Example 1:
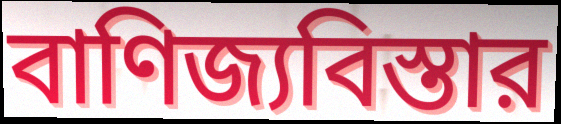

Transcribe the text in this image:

বাণিজ্যবিস্তার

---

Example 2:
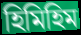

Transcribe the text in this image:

হিমিহিম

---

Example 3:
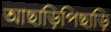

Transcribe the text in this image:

আছাড়িপিছাড়ি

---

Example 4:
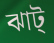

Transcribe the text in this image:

ঝাট্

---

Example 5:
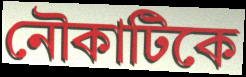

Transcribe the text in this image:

নৌকাটিকে